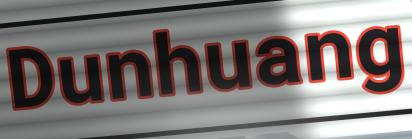
Dunhuang